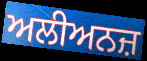
ਅਲੀਅਨਜ਼